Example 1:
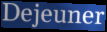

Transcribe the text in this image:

Dejeuner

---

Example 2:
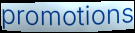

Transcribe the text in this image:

promotions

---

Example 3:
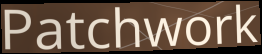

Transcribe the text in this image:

Patchwork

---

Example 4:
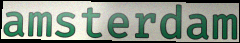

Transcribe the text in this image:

amsterdam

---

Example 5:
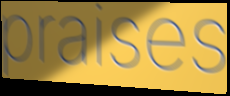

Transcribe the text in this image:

praises